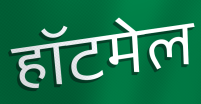
हॉटमेल